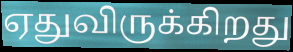
ஏதுவிருக்கிறது